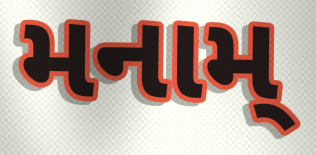
મનામ્